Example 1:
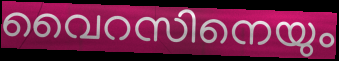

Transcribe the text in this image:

വൈറസിനെയും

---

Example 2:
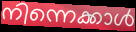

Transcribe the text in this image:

നിന്നെക്കാൾ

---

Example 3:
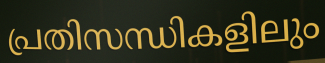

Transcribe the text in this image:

പ്രതിസന്ധികളിലും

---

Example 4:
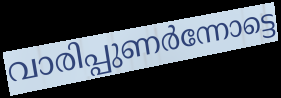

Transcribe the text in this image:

വാരിപ്പുണർന്നോട്ടെ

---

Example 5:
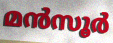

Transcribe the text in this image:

മൻസൂർ